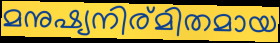
മനുഷ്യനിര്മിതമായ